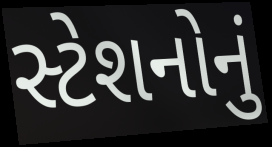
સ્ટેશનોનું